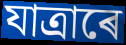
যাত্ৰাৰে